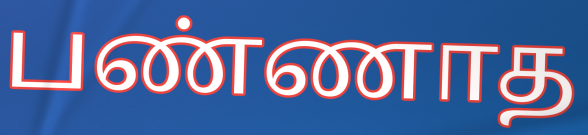
பண்ணாத